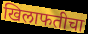
खिलाफतीचा